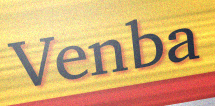
Venba